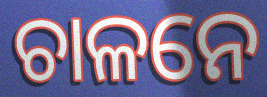
ଚାଳନେ